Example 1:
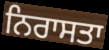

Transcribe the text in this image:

ਨਿਰਾਸਤਾ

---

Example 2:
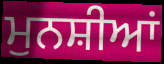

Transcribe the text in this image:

ਮੁਨਸ਼ੀਆਂ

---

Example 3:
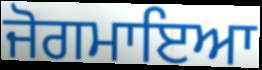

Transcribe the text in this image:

ਜੋਗਮਾਇਆ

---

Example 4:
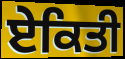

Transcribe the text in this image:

ਏਕਿਤੀ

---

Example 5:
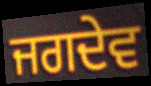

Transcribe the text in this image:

ਜਗਦੇਵ